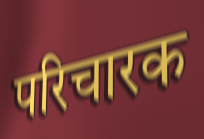
परिचारक